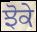
ਝੋਕੇ